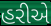
હરીએ